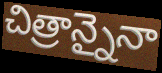
చిత్రాన్నైనా